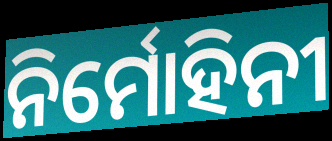
ନିର୍ମୋହିନୀ